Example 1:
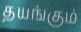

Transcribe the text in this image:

தயங்கும்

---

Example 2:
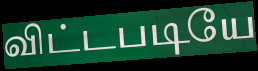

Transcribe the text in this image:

விட்டபடியே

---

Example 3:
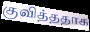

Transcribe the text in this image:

குவித்ததாக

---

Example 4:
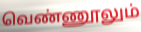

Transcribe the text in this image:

வெண்ணூலும்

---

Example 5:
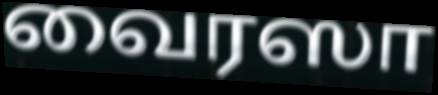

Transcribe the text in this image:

வைரஸா